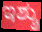
ಇಶ್ಶು